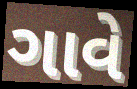
ગાવે